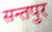
सन्तपुर